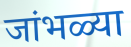
जांभळ्या